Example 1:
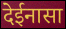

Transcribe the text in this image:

देईनासा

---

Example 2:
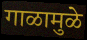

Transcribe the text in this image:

गाळामुळे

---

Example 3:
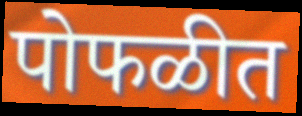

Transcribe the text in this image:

पोफळीत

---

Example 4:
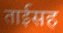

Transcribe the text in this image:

ताईसह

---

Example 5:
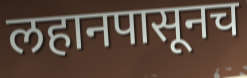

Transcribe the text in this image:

लहानपासूनच